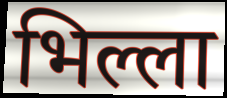
भिल्ला